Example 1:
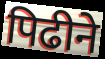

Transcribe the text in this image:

पिढीने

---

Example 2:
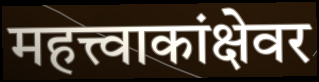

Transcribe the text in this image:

महत्त्वाकांक्षेवर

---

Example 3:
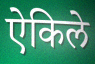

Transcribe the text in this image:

ऐकिले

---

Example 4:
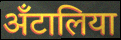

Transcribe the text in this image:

अँटालिया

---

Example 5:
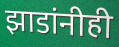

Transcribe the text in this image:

झाडांनीही